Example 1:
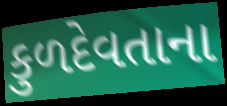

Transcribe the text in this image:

કુળદેવતાના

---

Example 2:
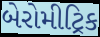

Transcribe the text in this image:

બેરોમીટ્રિક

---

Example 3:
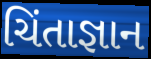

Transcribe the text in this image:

ચિંતાજ્ઞાન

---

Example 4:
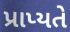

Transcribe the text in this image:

પ્રાપ્યતે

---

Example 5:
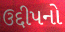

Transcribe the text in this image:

ઉદ્દીપનો